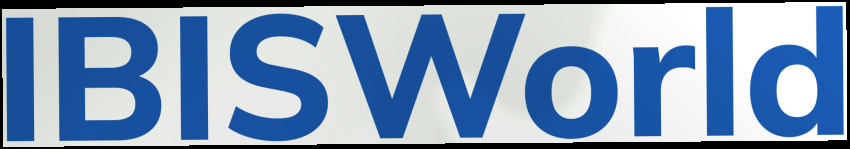
IBISWorld